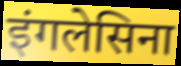
इंगलेसिना